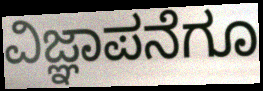
ವಿಜ್ಞಾಪನೆಗೂ